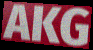
AKG